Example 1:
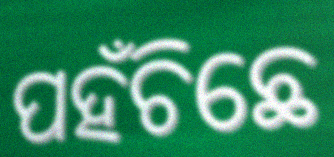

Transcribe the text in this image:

ପହଁଚିଛେ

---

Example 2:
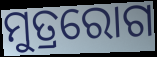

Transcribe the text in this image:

ମୁତ୍ରରୋଗ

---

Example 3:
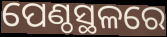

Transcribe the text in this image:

ପେଣ୍ଠସ୍ଥଳରେ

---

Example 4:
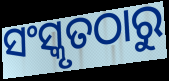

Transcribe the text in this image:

ସଂସ୍କୃତଠାରୁ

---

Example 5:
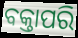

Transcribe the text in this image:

ବକ୍ତାପରି